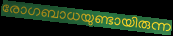
രോഗബാധയുണ്ടായിരുന്ന